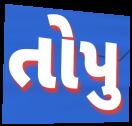
તોપુ